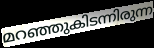
മറഞ്ഞുകിടന്നിരുന്ന